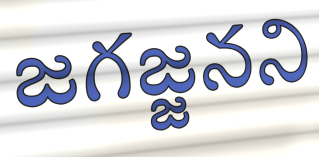
జగజ్జనని